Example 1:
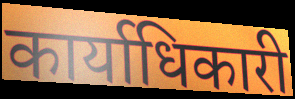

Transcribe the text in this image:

कार्याधिकारी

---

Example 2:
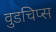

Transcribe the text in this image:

वुडचिप्स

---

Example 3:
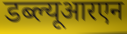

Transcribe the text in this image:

डब्ल्यूआरएन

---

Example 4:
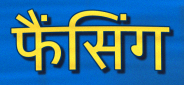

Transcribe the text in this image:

फैंसिंग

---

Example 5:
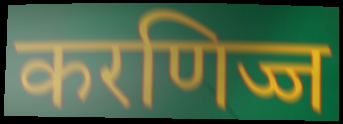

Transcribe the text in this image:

करणिज्ज